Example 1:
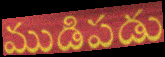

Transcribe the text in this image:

ముడిపడు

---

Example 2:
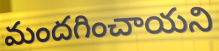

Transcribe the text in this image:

మందగించాయని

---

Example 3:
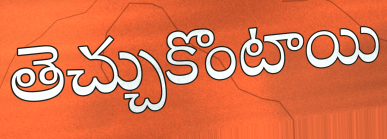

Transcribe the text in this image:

తెచ్చుకొంటాయి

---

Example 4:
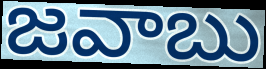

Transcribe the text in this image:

జవాబు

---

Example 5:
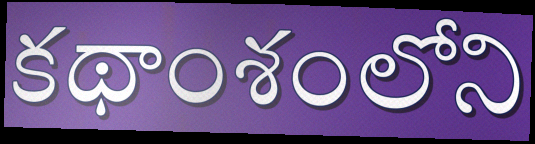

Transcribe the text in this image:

కథాంశంలోని